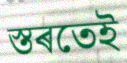
স্তৰতেই